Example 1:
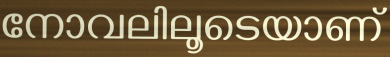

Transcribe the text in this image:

നോവലിലൂടെയാണ്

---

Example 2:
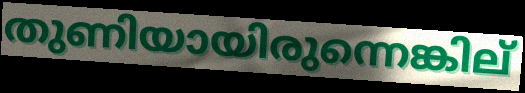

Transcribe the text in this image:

തുണിയായിരുന്നെങ്കില്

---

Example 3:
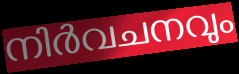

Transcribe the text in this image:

നിർവചനവും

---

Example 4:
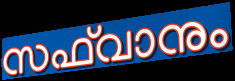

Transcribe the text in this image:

സഫ്‌വാനും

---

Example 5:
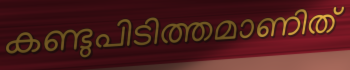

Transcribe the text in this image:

കണ്ടുപിടിത്തമാണിത്